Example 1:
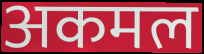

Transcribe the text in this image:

अकमल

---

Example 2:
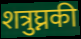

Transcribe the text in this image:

शत्रुघ्नकी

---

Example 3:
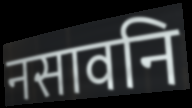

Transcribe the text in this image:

नसावनि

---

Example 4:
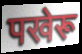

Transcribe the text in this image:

पखेरू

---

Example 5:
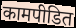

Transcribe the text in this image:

कामपीडित